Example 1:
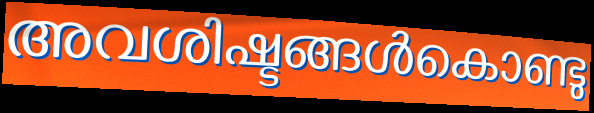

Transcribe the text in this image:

അവശിഷ്ടങ്ങൾകൊണ്ടു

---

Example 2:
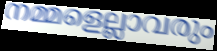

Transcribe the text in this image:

നമ്മളെല്ലാവരും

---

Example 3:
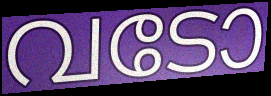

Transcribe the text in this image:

വടോ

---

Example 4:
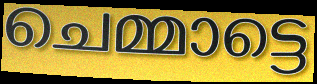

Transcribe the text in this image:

ചെമ്മാട്ടെ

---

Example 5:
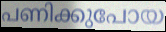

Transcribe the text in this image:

പണിക്കുപോയ